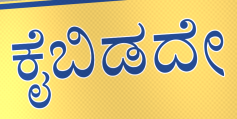
ಕೈಬಿಡದೇ